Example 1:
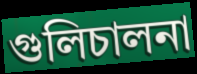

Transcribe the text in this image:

গুলিচালনা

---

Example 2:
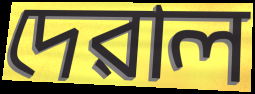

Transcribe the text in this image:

দেৱাল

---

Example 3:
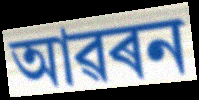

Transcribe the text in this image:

আৱৰন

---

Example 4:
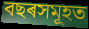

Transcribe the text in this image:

বছৰসমূহত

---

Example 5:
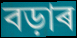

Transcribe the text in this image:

বড়াৰ